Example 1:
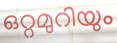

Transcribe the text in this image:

ഒറ്റമുറിയും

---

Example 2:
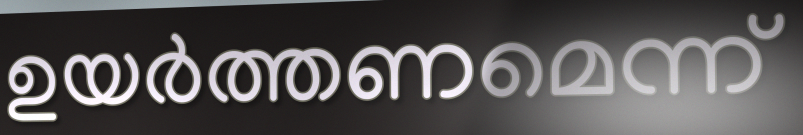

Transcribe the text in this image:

ഉയർത്തണമെന്ന്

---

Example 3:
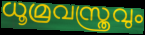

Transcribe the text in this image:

ധൂമ്രവസ്ത്രവും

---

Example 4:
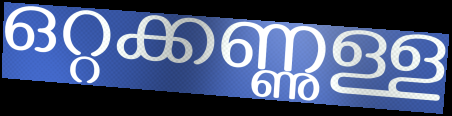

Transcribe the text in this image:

ഒറ്റക്കണ്ണുള്ള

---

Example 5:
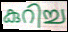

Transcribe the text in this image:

കുറിച്ച